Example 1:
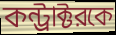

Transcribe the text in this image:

কন্ট্রাক্টরকে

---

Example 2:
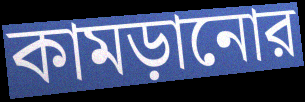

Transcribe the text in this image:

কামড়ানোর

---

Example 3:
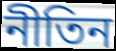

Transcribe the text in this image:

নীতিন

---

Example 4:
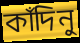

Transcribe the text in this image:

কাঁদিনু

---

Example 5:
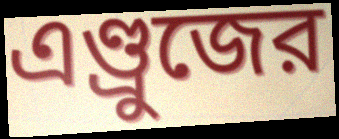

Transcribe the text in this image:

এণ্ড্রুজের